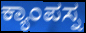
ಕ್ಯಾಂಪಸ್ನ